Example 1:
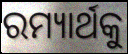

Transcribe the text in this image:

ରମ୍ୟାର୍ଥକୁ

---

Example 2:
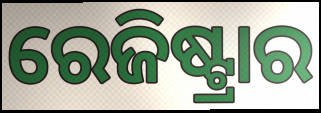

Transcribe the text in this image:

ରେଜିଷ୍ଟ୍ରାର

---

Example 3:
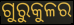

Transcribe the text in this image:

ଗୁରୁକୁଳର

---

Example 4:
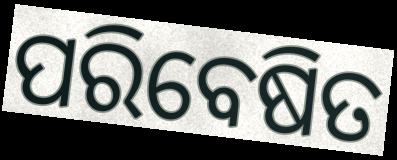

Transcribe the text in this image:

ପରିବେଷିତ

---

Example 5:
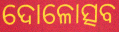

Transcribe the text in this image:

ଦୋଳୋତ୍ସବ